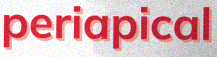
periapical